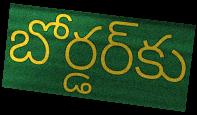
బోర్డర్‌కు